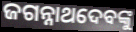
ଜଗନ୍ନାଥଦେବଙ୍କୁ